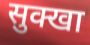
सुक्खा